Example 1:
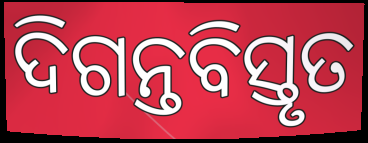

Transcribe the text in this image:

ଦିଗନ୍ତବିସ୍ତୃତ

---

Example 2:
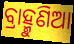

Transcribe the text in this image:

ବ୍ରାହ୍ମୁଣିଆ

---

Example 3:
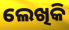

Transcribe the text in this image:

ଲେଖିକି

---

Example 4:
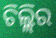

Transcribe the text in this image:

ଚିଲ୍ଲିର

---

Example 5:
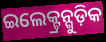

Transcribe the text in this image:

ଇଲେକ୍ଟ୍ରନ୍ଗୁଡ଼ିକ